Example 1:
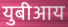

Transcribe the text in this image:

युबीआय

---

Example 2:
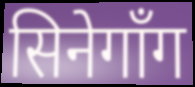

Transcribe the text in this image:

सिनेगाँग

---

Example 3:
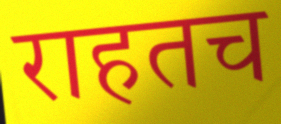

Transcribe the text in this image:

राहतच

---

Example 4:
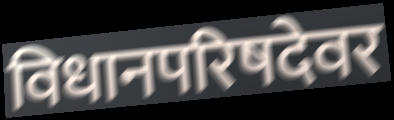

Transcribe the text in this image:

विधानपरिषदेवर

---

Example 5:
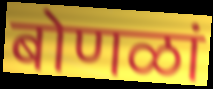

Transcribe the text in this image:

बोणळां